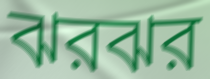
ঝরঝর